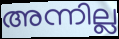
അന്നില്ല